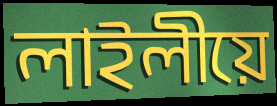
লাইলীয়ে